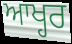
ਆਖ੍ਹਰ